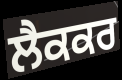
ਲੈਕਕਰ